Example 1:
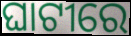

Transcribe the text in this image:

ଘାଟୀରେ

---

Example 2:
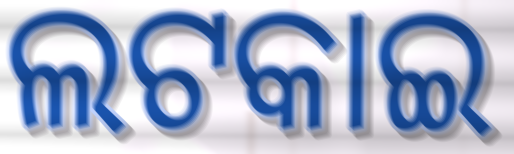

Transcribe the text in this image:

ଲଟକାଇ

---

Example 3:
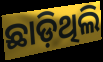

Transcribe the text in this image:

ଛାଡ଼ିଥିଲି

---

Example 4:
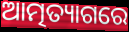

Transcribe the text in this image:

ଆତ୍ମତ୍ୟାଗରେ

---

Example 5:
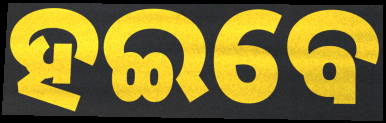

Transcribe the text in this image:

ହଇବେ